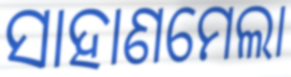
ସାହାଣମେଲା